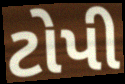
ટોપી